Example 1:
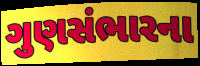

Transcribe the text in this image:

ગુણસંભારના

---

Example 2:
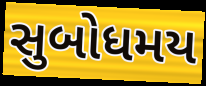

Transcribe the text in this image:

સુબોધમય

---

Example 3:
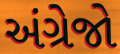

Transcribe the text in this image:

અંગ્રેજો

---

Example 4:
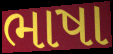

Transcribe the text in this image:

ભાષા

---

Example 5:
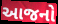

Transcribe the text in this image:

આજનો